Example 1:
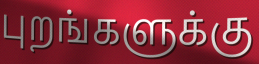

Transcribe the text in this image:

புறங்களுக்கு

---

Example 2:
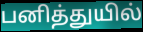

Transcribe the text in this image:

பனித்துயில்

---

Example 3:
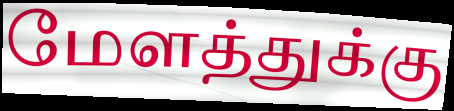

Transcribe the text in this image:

மேளத்துக்கு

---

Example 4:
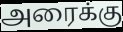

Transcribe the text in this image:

அரைக்கு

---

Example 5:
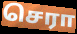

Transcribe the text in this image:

செரா